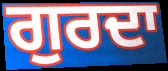
ਗੁਰਦਾ